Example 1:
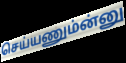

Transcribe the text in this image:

செய்யணும்ன்னு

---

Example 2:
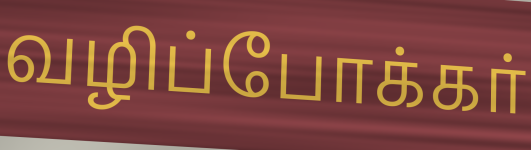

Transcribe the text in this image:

வழிப்போக்கர்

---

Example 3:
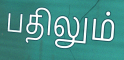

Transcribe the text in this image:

பதிலும்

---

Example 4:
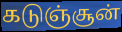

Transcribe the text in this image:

கடுஞ்சூன்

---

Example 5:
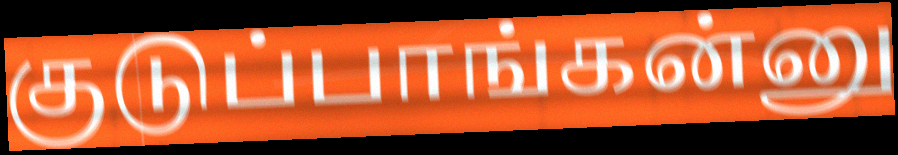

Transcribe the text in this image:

குடுப்பாங்கன்னு